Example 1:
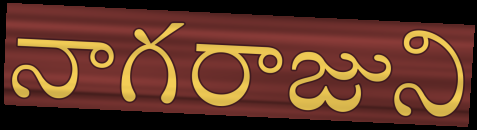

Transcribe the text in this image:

నాగరాజుని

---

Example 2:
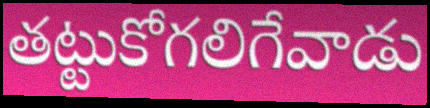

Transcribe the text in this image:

తట్టుకోగలిగేవాడు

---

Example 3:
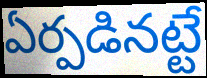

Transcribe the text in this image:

ఏర్పడినట్టే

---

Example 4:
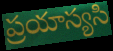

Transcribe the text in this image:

ప్రయాస్యసి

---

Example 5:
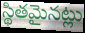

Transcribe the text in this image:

స్థితమైనట్లు